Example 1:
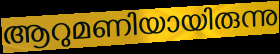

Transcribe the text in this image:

ആറുമണിയായിരുന്നു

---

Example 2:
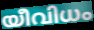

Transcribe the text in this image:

യീവിധം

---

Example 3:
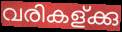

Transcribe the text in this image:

വരികള്ക്കു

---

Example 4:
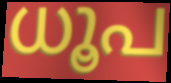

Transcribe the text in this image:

ധൂപ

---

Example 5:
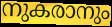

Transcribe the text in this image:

നുകരാനും